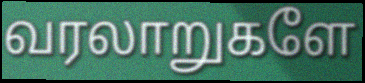
வரலாறுகளே